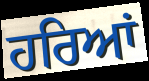
ਹਰਿਆਂ